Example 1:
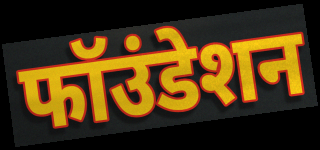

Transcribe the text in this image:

फॉउंडेशन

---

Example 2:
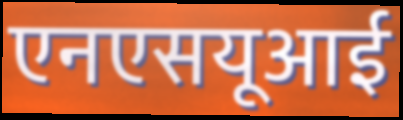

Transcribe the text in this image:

एनएसयूआई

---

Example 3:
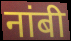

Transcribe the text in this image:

नांबी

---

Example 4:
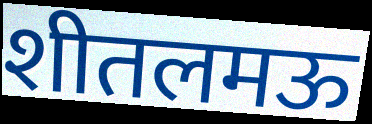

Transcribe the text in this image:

शीतलमऊ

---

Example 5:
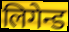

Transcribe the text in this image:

लिगेन्ड